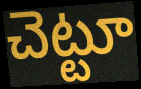
చెట్టూ